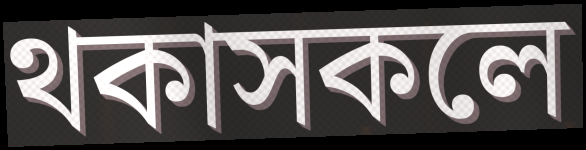
থকাসকলে